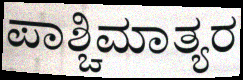
ಪಾಶ್ಚಿಮಾತ್ಯರ